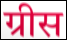
ग्रीस